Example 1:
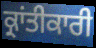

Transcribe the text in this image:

ਕ੍ਰਾਂਤੀਕਾਰੀ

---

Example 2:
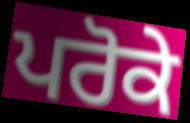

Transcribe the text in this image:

ਪਰੋਕੇ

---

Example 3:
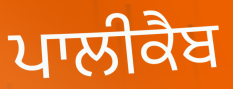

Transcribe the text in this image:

ਪਾਲੀਕੈਬ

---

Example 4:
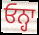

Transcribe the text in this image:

ਓਨ੍ਹਾ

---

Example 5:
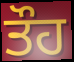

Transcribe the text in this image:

ਤੌਹ